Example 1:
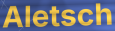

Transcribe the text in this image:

Aletsch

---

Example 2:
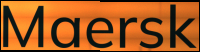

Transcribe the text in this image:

Maersk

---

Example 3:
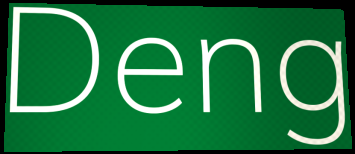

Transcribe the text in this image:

Deng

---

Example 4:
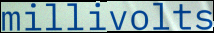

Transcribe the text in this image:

millivolts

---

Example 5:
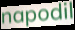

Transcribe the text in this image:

napodil